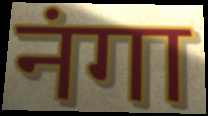
नंगा